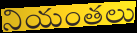
నియంతలు